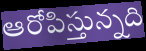
ఆరోపిస్తున్నది